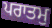
ਪਰਾਤਮੁ